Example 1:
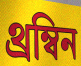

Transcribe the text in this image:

থ্রম্বিন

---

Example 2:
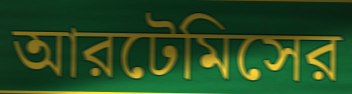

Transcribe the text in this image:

আরটেমিসের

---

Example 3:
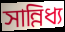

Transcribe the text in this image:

সান্নিধ্য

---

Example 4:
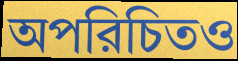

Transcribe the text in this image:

অপরিচিতও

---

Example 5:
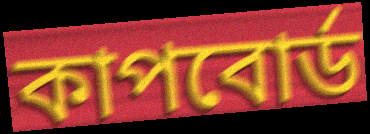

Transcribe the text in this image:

কাপবোর্ড